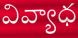
వివ్యాధ